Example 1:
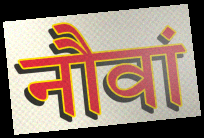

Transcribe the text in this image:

नौवां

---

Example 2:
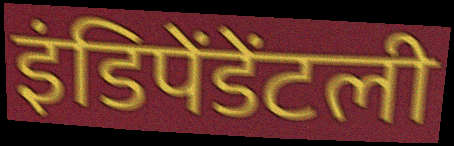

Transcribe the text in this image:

इंडिपेंडेंटली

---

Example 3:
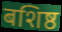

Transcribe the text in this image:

बशिष्ठ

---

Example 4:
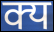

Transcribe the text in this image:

क्य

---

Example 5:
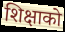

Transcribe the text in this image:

शिक्षाको